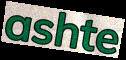
ashte